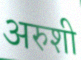
अरुशी